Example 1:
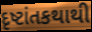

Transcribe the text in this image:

દૃષ્ટાંતકથાથી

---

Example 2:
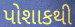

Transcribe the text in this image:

પોશાકથી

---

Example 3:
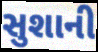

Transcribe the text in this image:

સુશાની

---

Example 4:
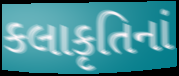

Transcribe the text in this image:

કલાકૃતિનાં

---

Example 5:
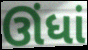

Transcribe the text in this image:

ઊંધાં